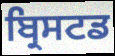
ਬ੍ਰਿਸਟਡ